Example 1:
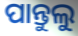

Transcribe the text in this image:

ପାନ୍ତୁଲୁ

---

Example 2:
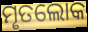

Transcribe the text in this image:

ମୃତଲୋକ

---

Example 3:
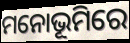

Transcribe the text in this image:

ମନୋଭୂମିରେ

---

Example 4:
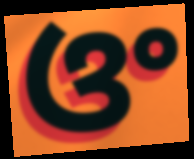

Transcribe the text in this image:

ଓଂ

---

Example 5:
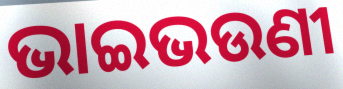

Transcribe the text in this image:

ଭାଇଭଉଣୀ